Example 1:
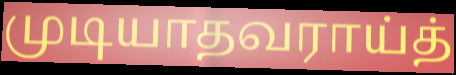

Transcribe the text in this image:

முடியாதவராய்த்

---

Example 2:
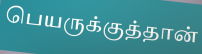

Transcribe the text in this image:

பெயருக்குத்தான்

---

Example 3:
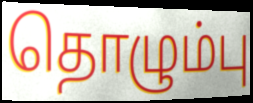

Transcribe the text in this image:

தொழும்பு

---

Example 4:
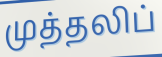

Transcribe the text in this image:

முத்தலிப்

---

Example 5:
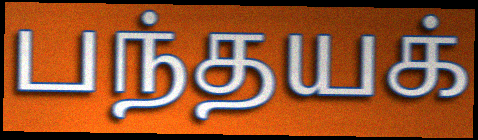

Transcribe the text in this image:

பந்தயக்